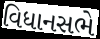
વિધાનસભે